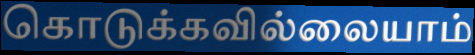
கொடுக்கவில்லையாம்